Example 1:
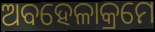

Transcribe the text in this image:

ଅବହେଳାକ୍ରମେ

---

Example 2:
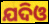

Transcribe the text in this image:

ଯଦିଓ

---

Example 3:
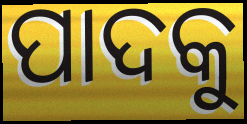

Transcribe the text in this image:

ପାଦକୁ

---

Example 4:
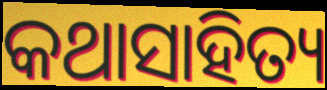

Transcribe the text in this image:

କଥାସାହିତ୍ୟ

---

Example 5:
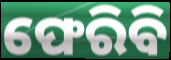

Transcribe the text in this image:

ଫେରିବି